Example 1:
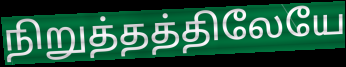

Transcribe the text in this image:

நிறுத்தத்திலேயே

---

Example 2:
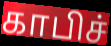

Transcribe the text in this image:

காபிச்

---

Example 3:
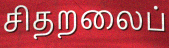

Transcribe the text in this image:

சிதறலைப்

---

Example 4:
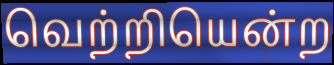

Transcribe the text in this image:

வெற்றியென்ற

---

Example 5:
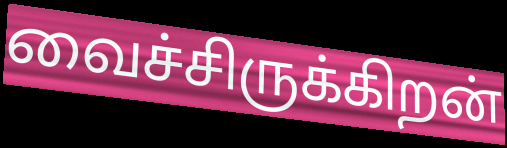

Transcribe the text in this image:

வைச்சிருக்கிறன்